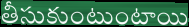
తీసుకుంటుంటాయి